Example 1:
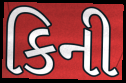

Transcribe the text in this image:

કિની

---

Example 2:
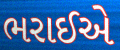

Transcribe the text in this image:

ભરાઈએ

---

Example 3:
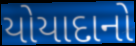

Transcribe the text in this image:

યોયાદાનો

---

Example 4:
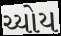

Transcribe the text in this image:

ચ્યોય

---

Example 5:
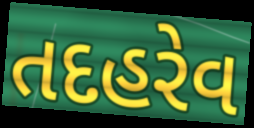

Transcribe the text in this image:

તદહરેવ